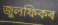
জুলফিকৰ